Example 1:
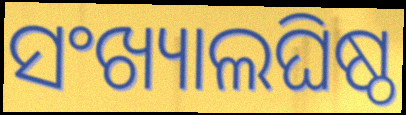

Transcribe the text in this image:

ସଂଖ୍ୟାଲଘିଷ୍ଠ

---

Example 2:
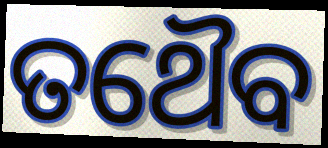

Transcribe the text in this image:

ତଥୈବ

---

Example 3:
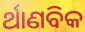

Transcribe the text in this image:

ର୍ଥାଣବିକ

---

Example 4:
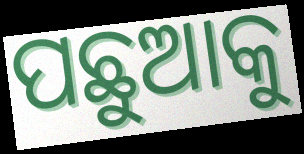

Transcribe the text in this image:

ପଛୁଆକୁ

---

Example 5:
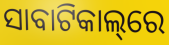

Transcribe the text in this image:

ସାବାଟିକାଲ୍‌ରେ